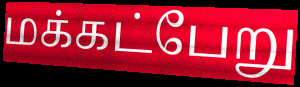
மக்கட்பேறு